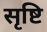
सृष्टि